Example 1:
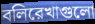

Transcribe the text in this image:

বলিরেখাগুলো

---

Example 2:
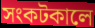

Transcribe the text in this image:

সংকটকালে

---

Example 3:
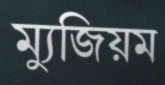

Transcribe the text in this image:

ম্যুজিয়ম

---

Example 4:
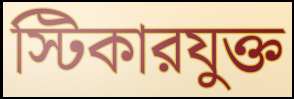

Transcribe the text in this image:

স্টিকারযুক্ত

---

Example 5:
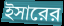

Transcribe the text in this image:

ইসারের